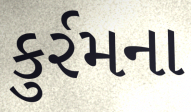
કુર્રમના